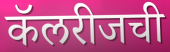
कॅलरीजची